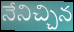
నేనిచ్చిన